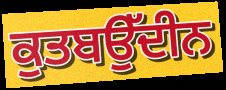
ਕੁਤਬਉੱਦੀਨ